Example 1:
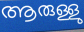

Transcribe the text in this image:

ആരുള്ളു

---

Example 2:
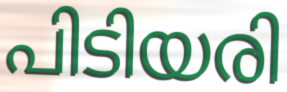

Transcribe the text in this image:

പിടിയരി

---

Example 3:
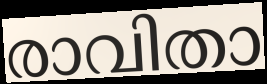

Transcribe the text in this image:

രാവിതാ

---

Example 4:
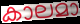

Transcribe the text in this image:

കാലമാ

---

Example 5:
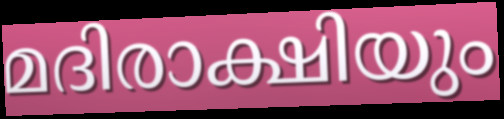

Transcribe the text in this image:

മദിരാക്ഷിയും